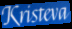
Kristeva